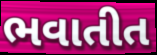
ભવાતીત